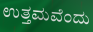
ಉತ್ತಮವೆಂದು